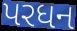
પરધન